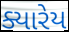
ક્યારેય